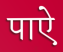
पाऐ